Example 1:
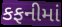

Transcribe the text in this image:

કફનીમાં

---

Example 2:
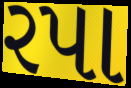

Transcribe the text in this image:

રપા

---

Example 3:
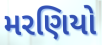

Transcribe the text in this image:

મરણિયો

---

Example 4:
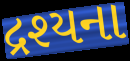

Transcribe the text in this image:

દ્રશ્યના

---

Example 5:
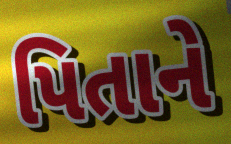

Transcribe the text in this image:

પિતાને